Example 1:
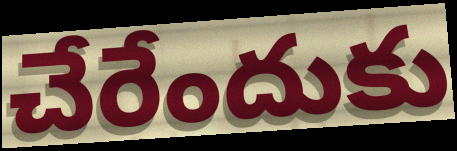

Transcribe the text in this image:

చేరేందుకు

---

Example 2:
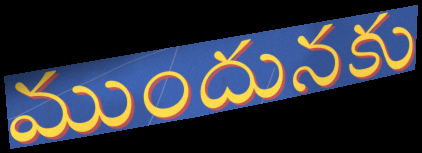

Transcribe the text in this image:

ముందునకు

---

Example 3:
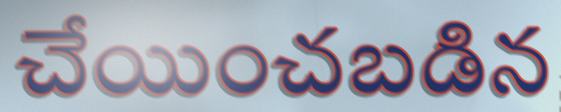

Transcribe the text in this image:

చేయించబడిన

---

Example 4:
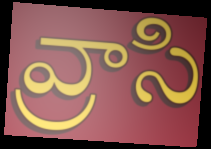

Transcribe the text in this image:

వ్రాసి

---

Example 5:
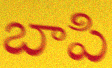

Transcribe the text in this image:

బాపి